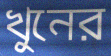
খুনের